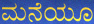
ಮನೆಯೂ